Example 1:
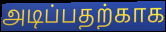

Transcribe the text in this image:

அடிப்பதற்காக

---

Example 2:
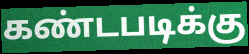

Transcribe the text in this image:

கண்டபடிக்கு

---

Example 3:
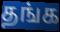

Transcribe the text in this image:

தங்க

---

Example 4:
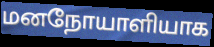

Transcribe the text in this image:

மனநோயாளியாக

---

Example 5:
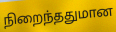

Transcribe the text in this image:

நிறைந்ததுமான